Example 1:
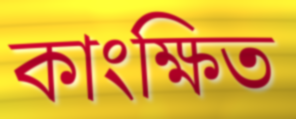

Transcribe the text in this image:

কাংক্ষিত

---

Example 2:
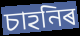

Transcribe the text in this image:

চাহনিৰ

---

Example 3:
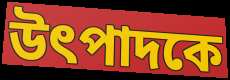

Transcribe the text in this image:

উৎপাদকে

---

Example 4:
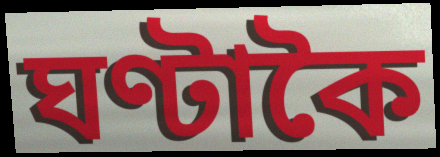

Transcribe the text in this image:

ঘণ্টাকৈ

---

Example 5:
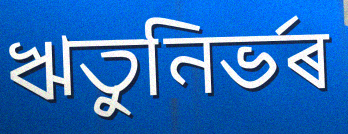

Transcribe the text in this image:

ঋতুনিৰ্ভৰ